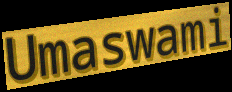
Umaswami